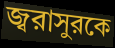
জ্বরাসুরকে